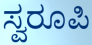
ಸ್ವರೂಪಿ